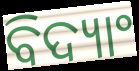
ବିଦ୍ଯାଂ